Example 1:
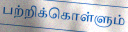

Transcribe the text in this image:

பற்றிக்கொள்ளும்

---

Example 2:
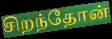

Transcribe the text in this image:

சிறந்தோன்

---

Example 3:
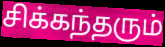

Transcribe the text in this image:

சிக்கந்தரும்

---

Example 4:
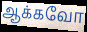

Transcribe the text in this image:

ஆக்கவோ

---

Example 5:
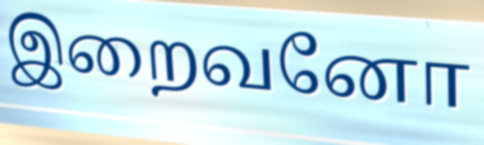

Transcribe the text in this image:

இறைவனோ